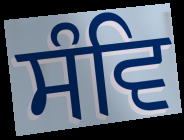
ਸੰਵਿ